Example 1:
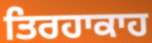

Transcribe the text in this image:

ਤਿਰਹਾਕਾਹ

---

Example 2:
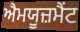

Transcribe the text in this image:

ਐਮਯੂਜ਼ਮੈਂਟ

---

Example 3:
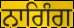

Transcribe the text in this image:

ਨਾਗਿੰਗ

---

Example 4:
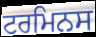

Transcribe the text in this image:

ਟਰਮਿਨਸ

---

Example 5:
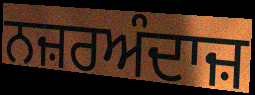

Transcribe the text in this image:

ਨਜ਼ਰਅੰਦਾਜ਼